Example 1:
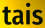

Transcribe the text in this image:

tais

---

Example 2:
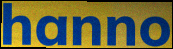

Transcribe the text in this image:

hanno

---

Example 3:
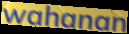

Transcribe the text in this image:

wahanan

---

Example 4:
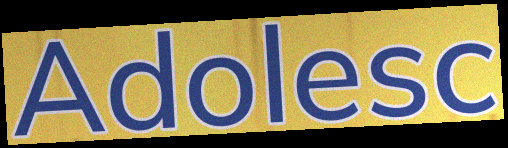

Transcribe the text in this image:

Adolesc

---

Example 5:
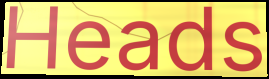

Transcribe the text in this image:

Heads